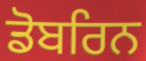
ਡੋਬਰਿਨ